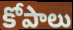
కోపాలు